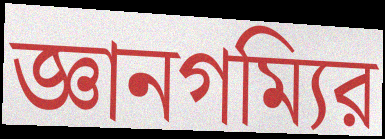
জ্ঞানগম্যির